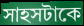
সাহসটাকে